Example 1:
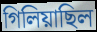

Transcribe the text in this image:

গিলিয়াছিল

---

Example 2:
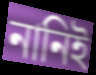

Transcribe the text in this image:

নানিই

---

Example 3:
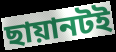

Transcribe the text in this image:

ছায়ানটই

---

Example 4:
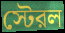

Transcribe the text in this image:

স্টেরল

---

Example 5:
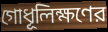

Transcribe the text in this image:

গোধূলিক্ষণের